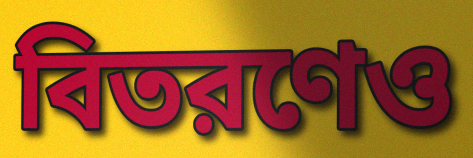
বিতরণেও